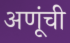
अणूंची